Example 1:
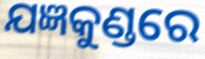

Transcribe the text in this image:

ଯଜ୍ଞକୁଣ୍ଡରେ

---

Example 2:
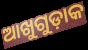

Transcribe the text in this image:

ଆଖୁଗୁଡ଼ାକ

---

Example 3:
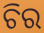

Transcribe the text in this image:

ଚିର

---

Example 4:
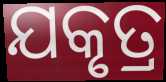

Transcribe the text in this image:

ଯକୃତ୍ର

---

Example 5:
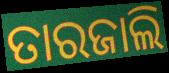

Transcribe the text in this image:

ତାରଜାଲି